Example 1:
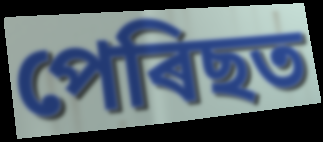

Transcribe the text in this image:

পেৰিছত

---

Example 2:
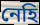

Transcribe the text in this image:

নেহি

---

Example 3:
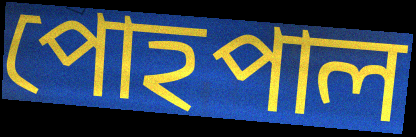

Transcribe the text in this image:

পোহপাল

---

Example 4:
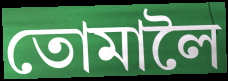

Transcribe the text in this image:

তোমালৈ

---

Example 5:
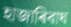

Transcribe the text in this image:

হাজাৰিবাঘ